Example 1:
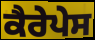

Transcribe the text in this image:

ਕੈਰੇਪੇਸ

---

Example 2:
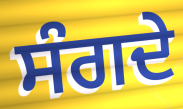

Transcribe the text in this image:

ਸੰਗਦੇ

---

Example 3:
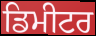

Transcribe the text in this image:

ਡਿਮੀਟਰ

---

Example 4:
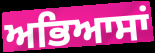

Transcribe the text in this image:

ਅਭਿਆਸਾਂ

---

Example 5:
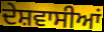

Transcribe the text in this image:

ਦੇਸ਼ਵਾਸੀਆਂ